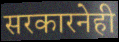
सरकारनेही